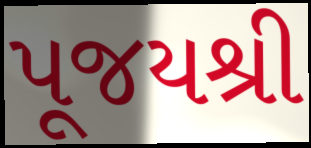
પૂજયશ્રી